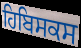
ਹਿਬਿਸਕਸ